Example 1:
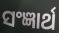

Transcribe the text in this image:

ସଂଜ୍ଞାର୍ଥ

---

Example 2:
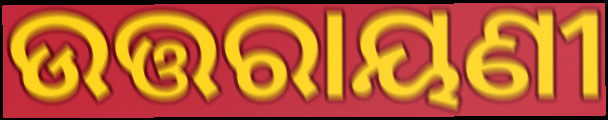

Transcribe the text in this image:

ଉତ୍ତରାୟଣୀ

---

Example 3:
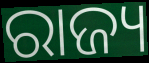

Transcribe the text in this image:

ରାଜ୍ୟ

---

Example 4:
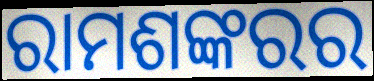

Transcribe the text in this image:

ରାମଶଙ୍କରର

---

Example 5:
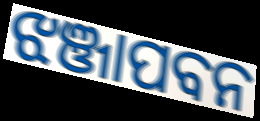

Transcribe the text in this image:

ଝଞ୍ଜାପବନ